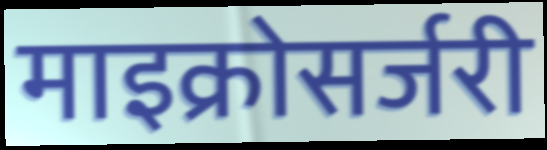
माइक्रोसर्जरी